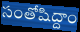
సంతోషిద్దాం